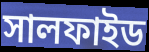
সালফাইড